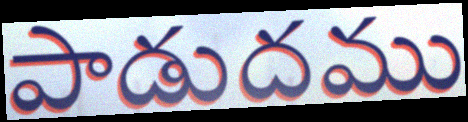
పాడుదము